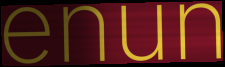
enun